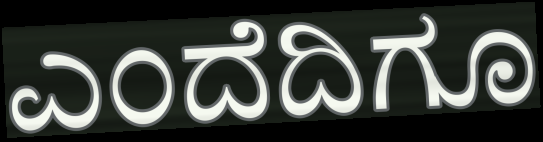
ಎಂದೆದಿಗೂ